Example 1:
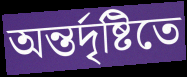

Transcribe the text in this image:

অন্তর্দৃষ্টিতে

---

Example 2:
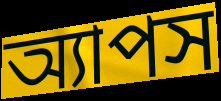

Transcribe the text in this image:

অ্যাপস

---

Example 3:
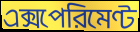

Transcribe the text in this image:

এক্সপেরিমেণ্ট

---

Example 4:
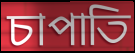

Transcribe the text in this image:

চাপাতি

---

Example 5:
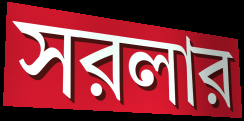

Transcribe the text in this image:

সরলার